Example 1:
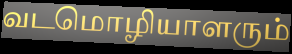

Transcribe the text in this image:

வடமொழியாளரும்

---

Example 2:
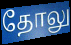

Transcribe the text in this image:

தோலு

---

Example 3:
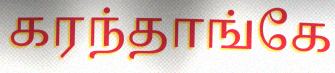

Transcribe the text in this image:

கரந்தாங்கே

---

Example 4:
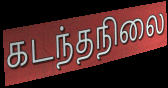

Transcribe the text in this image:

கடந்தநிலை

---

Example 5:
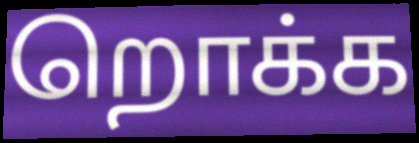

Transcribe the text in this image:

றொக்க